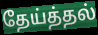
தேய்த்தல்